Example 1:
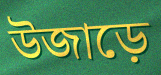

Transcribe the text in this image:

উজাড়ে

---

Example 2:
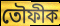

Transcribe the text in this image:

তৌফীক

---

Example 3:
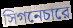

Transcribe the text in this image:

সিগনেচারে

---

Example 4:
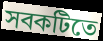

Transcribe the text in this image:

সবকটিতে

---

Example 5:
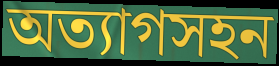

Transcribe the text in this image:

অত্যাগসহন